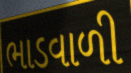
ભાડવાળી